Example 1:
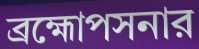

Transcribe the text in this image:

ব্রহ্মোপসনার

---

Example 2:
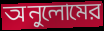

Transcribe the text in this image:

অনুলোমের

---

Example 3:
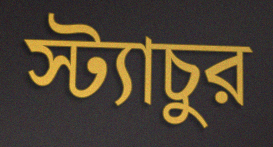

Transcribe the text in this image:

স্ট্যাচুর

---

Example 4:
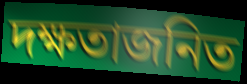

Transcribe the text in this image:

দক্ষতাজনিত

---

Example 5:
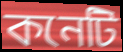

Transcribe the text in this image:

কনেটি